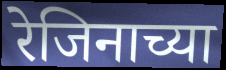
रेजिनाच्या